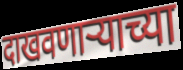
दाखवणाऱ्याच्या